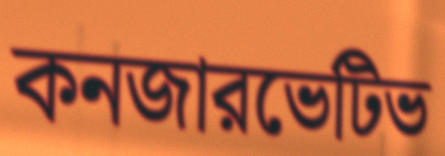
কনজারভেটিভ